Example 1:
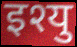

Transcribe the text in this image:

इश्यु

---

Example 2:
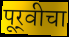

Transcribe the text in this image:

पूर्वीचा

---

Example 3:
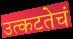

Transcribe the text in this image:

उत्कटतेचं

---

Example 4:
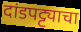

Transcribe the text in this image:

दांडपट्ट्याचा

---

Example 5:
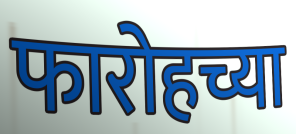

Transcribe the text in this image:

फारोहच्या